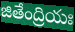
జితేంద్రియః